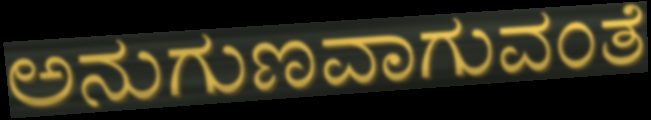
ಅನುಗುಣವಾಗುವಂತೆ